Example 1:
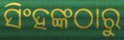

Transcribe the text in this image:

ସିଂହଙ୍କଠାରୁ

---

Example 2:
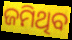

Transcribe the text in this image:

ଜମିଥିବ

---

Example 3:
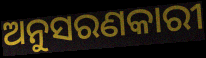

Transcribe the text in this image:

ଅନୁସରଣକାରୀ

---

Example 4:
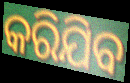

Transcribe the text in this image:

କରିଯିବ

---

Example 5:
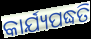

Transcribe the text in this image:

କାର୍ଯ୍ୟପଦ୍ଧତି